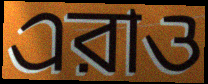
এরাও